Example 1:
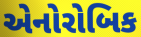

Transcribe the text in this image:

એનોરોબિક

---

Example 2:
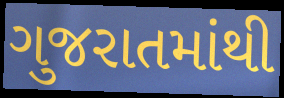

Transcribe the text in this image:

ગુજરાતમાંથી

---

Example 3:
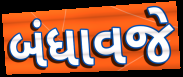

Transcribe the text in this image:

બંધાવજે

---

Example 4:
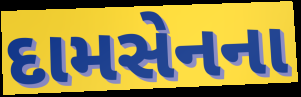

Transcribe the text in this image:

દામસેનના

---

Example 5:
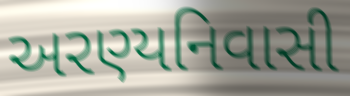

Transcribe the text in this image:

અરણ્યનિવાસી